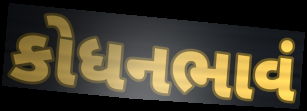
કોધનભાવં